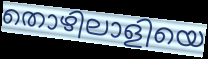
തൊഴിലാളിയെ